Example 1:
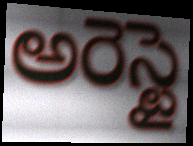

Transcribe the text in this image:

అరెస్టై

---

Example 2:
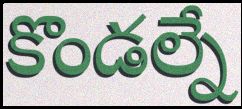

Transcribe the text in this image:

కొండల్నే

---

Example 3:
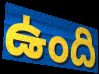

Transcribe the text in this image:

ఉంది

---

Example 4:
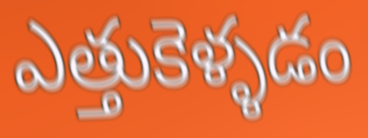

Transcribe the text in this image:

ఎత్తుకెళ్ళడం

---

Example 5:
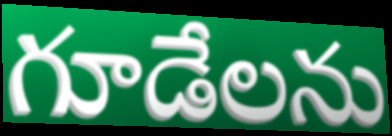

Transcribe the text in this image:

గూడేలను